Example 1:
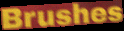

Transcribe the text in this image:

Brushes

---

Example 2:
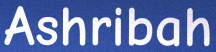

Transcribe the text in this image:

Ashribah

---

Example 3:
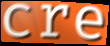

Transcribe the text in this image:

cre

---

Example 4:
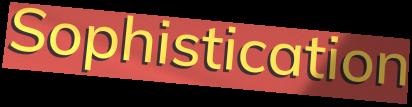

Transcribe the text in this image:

Sophistication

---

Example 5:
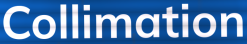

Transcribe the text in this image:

Collimation